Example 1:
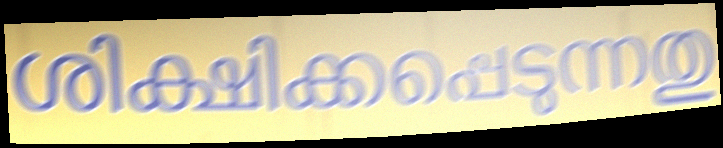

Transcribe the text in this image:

ശിക്ഷിക്കപ്പെടുന്നതു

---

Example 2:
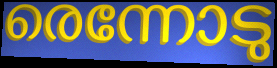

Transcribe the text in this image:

രെന്നോടു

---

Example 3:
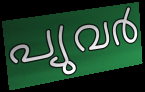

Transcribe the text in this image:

പ്യുവർ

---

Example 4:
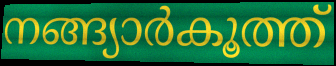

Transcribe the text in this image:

നങ്ങ്യാർകൂത്ത്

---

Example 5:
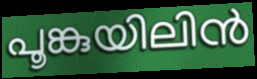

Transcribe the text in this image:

പൂങ്കുയിലിൻ